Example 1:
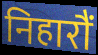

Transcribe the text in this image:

निहारौं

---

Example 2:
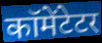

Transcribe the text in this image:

कॉमेंटेटर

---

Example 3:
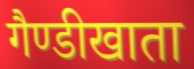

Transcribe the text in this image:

गैण्डीखाता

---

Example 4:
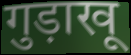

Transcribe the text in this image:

गुड़ाखू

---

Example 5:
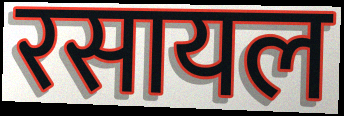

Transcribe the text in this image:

रसायल